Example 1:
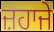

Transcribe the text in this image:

ਜ਼ਹਾਜੇ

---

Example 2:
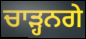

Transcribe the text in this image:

ਚਾੜ੍ਹਨਗੇ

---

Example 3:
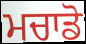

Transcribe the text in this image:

ਮਚਾਡੋ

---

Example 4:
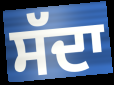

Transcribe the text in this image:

ਸੱਦਾ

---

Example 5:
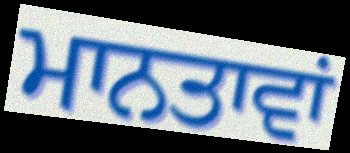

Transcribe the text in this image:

ਮਾਨਤਾਵਾਂ